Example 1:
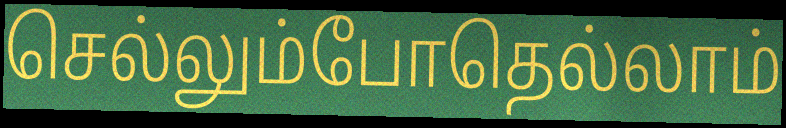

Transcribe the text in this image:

செல்லும்போதெல்லாம்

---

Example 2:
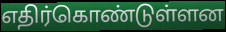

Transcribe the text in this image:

எதிர்கொண்டுள்ளன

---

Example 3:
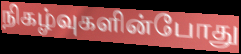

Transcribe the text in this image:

நிகழ்வுகளின்போது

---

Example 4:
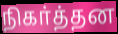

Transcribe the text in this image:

நிகர்த்தன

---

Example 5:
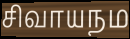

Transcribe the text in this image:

சிவாயநம